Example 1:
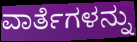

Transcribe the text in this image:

ವಾರ್ತೆಗಳನ್ನು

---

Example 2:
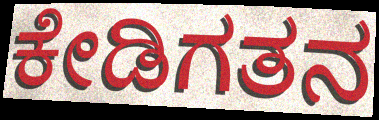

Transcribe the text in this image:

ಕೇಡಿಗತನ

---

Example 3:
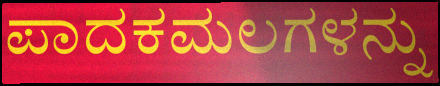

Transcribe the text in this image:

ಪಾದಕಮಲಗಳನ್ನು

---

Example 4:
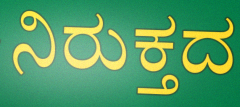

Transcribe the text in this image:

ನಿರುಕ್ತದ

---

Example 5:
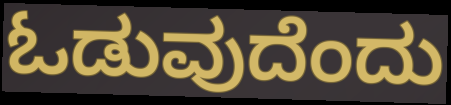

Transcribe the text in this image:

ಓಡುವುದೆಂದು